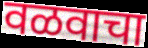
वळवाचा